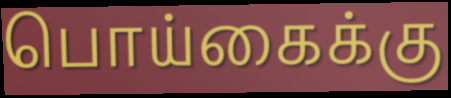
பொய்கைக்கு